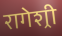
रागेश्री